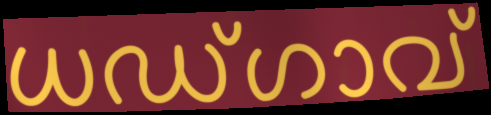
ധഡ്ഗാവ്